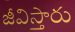
జీవిస్తారు